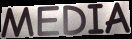
MEDIA